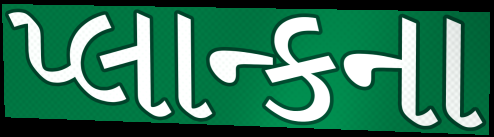
પ્લાન્કના